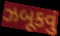
ઝબૂકવું